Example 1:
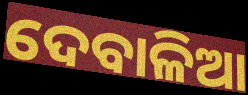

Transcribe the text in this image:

ଦେବାଳିଆ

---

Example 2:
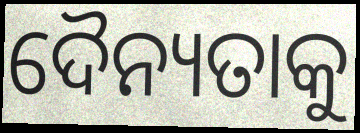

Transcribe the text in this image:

ଦୈନ୍ୟତାକୁ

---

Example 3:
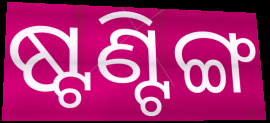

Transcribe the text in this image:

ଷ୍ଟଣ୍ଟିଙ୍ଗ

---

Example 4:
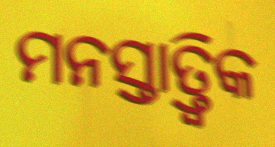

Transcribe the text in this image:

ମନସ୍ତାତ୍ତ୍ୱିକ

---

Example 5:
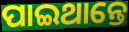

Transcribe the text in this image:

ପାଇଥାନ୍ତେ